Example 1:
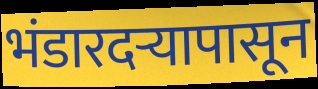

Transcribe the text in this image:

भंडारदऱ्यापासून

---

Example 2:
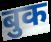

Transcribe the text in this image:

बुक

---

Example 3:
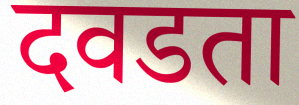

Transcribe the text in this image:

दवडता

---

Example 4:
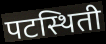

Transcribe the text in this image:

पटस्थिती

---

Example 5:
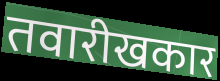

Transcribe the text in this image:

तवारीखकार